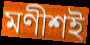
মণীশই